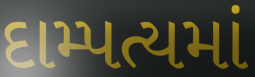
દામ્પત્યમાં